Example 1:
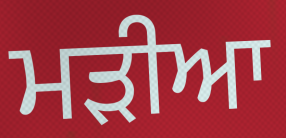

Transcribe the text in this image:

ਮਡ਼ੀਆ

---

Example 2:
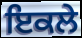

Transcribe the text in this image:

ਇਕਲੇ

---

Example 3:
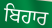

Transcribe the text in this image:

ਬਿਹਾਰ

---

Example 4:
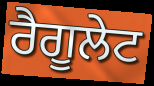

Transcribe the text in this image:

ਰੈਗੂਲੇਟ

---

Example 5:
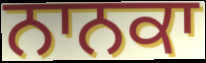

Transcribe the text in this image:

ਨਾਨਕਾ